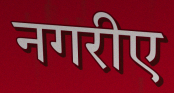
नगरीए